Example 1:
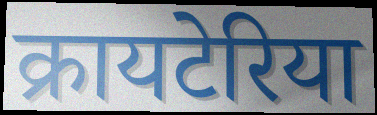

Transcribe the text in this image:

क्रायटेरिया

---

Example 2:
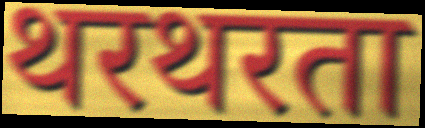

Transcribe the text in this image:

थरथरता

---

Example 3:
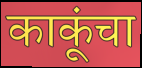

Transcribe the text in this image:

काकूंचा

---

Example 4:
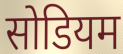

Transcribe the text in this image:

सोडियम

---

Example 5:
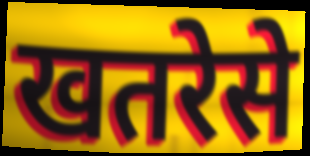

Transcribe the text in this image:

खतरेसे